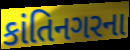
કાંતિનગરના